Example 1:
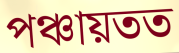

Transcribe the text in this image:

পঞ্চায়তত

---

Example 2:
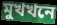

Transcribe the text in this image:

মুখখনে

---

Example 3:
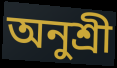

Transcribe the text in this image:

অনুশ্ৰী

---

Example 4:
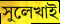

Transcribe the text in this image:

সুলেখাই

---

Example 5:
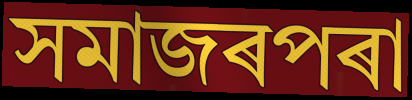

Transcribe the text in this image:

সমাজৰপৰা